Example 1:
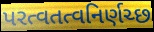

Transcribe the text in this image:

પરત્વતત્વનિર્ણચ્છ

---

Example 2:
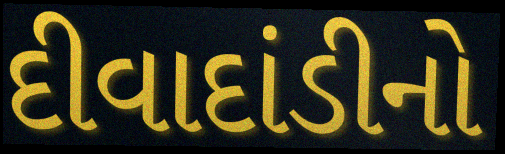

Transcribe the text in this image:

દીવાદાંડીનો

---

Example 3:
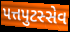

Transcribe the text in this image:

પત્તપુટસ્સેવ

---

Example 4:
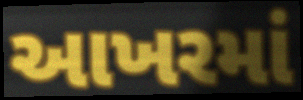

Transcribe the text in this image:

આખરમાં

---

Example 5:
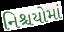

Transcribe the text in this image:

નિશ્ચયોમાં